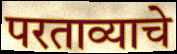
परताव्याचे